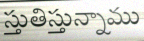
స్తుతిస్తున్నాము